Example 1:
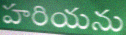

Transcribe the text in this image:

హరియను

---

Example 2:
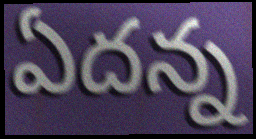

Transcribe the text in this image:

ఏదన్న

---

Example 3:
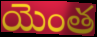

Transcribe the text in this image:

యెంత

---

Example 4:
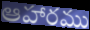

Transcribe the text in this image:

ఆహారము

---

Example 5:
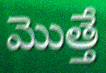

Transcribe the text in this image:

మొత్తే